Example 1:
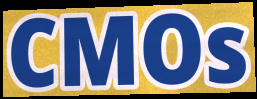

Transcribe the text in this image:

CMOs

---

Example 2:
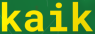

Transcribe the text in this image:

kaik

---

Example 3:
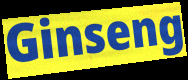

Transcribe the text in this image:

Ginseng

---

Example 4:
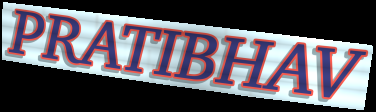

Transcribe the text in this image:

PRATIBHAV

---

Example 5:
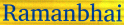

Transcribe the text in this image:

Ramanbhai